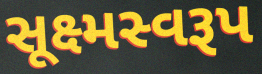
સૂક્ષ્મસ્વરૂપ